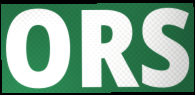
ORS